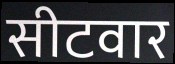
सीटवार